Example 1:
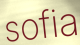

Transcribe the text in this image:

sofia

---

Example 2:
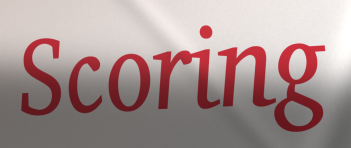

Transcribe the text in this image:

Scoring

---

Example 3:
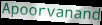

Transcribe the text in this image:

Apoorvanand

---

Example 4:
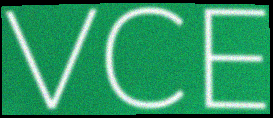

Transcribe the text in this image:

VCE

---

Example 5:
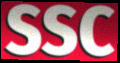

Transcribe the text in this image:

SSC